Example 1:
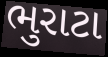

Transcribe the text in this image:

ભુરાટા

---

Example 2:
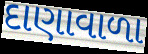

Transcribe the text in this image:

દાણાવાળા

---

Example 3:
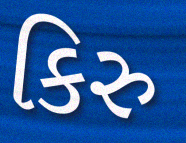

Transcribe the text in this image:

કિરુ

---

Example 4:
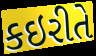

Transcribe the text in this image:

કઇરીતે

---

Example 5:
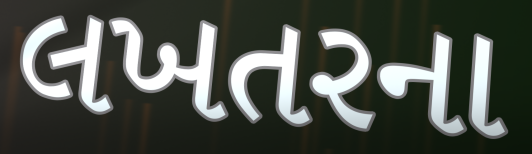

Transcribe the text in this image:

લખતરના